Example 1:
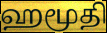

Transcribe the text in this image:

ஹமூதி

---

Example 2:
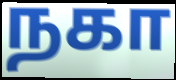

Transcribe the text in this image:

நகா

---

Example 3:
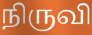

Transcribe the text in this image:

நிருவி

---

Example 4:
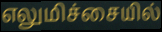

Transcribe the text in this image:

எலுமிச்சையில்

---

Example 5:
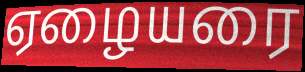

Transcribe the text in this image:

ஏழையரை